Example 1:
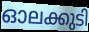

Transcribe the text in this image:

ഓലക്കുടി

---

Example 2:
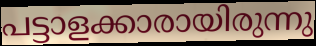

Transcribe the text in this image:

പട്ടാളക്കാരായിരുന്നു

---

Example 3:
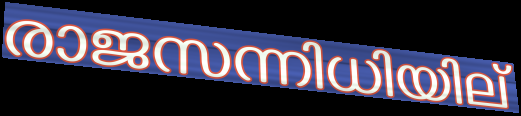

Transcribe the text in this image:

രാജസന്നിധിയില്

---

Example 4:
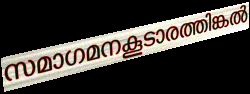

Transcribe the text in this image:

സമാഗമനകൂടാരത്തിങ്കൽ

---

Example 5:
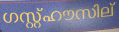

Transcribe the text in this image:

ഗസ്റ്റ്ഹൗസില്